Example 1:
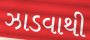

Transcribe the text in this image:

ઝાડવાથી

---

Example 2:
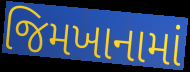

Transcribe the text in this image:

જિમખાનામાં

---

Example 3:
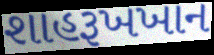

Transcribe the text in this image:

શાહરૂખખાન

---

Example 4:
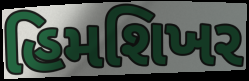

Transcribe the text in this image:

હિમશિખર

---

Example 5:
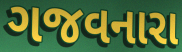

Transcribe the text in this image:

ગજવનારા